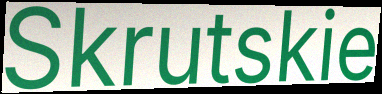
Skrutskie